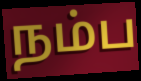
நம்ப